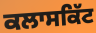
ਕਲਾਸਕਿੱਟ